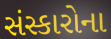
સંસ્કારોના